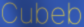
Cubeb